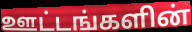
ஊட்டங்களின்